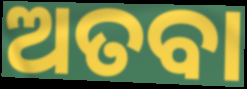
ଅତବା